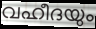
വഹീദയും